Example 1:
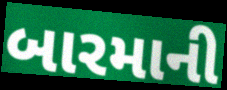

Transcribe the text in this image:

બારમાની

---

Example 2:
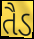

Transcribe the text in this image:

તૈડ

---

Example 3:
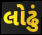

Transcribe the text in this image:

લોઢું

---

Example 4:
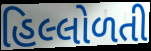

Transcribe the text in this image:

હિલ્લોળતી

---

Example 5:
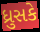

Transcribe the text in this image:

ધ્રુસકે